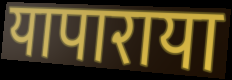
यापाराया